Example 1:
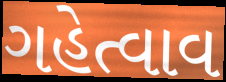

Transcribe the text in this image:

ગહેત્વાવ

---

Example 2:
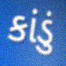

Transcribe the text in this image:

કાંડું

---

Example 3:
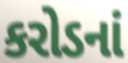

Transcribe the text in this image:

કરોડનાં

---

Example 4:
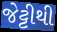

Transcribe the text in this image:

જેટ્ટીથી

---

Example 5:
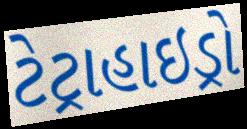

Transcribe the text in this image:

ટેટ્રાહાઇડ્રો